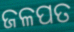
ଜଳପତ